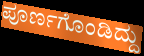
ಪೂರ್ಣಗೊಂಡಿದ್ದು